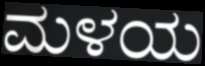
ಮಳಯ